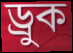
ড্রুক